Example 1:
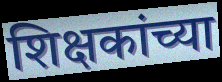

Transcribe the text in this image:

शिक्षकांच्‍या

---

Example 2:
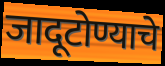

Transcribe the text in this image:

जादूटोण्याचे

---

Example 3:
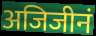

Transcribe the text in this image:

अजिजीनं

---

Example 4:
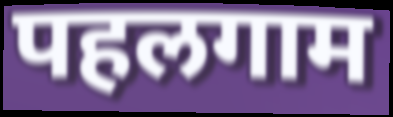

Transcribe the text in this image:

पहलगाम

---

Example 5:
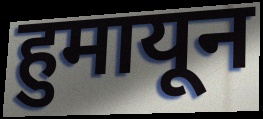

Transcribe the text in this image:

हुमायून